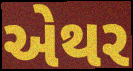
એથર